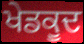
ਖੇਡਕੂਦ